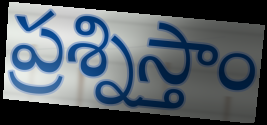
ప్రశ్నిస్తాం